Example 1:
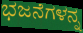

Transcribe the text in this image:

ಭಜನೆಗಳನ್ನ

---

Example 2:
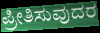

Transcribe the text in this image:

ಪ್ರೀತಿಸುವುದರ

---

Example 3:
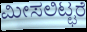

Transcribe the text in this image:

ಮೀಸಲಿಟ್ಟರೆ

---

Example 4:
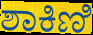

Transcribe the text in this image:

ಶಾಕಿಣಿ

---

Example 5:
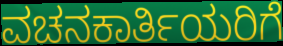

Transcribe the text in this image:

ವಚನಕಾರ್ತಿಯರಿಗೆ